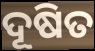
ଦୂଷିତ